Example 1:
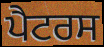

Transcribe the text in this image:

ਪੈਟਰਸ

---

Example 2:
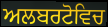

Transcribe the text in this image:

ਅਲਬਰਟੋਵਿਚ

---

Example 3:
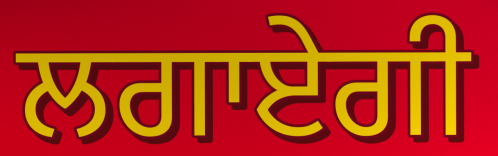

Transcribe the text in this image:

ਲਗਾਏਗੀ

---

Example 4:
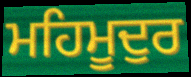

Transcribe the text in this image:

ਮਹਿਮੂਦੁਰ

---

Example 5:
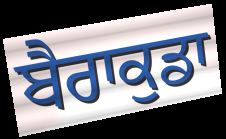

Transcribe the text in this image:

ਬੈਰਾਕੁਡਾ